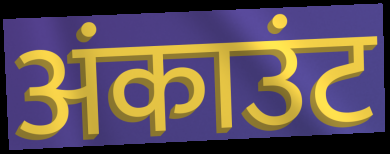
अंकाउंट